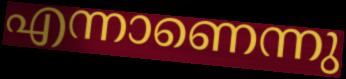
എന്നാണെന്നു